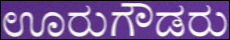
ಊರುಗೌಡರು